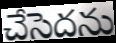
చేసెదను